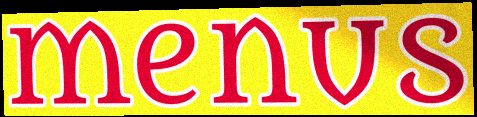
menus